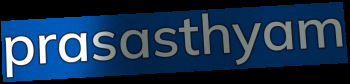
prasasthyam